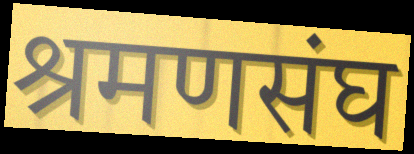
श्रमणसंघ